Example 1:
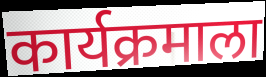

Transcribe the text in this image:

कार्यक्रमाला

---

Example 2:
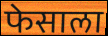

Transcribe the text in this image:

फेसाला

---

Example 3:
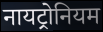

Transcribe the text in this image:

नायट्रोनियम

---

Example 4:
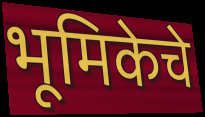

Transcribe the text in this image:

भूमिकेचे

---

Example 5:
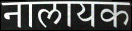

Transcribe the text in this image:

नालायक